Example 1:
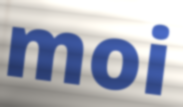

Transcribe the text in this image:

moi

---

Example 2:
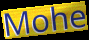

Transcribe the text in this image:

Mohe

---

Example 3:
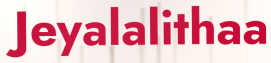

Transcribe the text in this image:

Jeyalalithaa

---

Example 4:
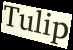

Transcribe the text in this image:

Tulip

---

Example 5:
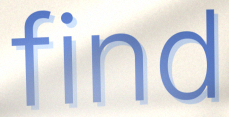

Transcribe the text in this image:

find